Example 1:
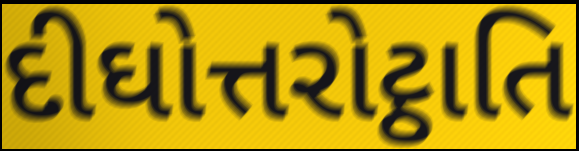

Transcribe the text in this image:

દીઘોત્તરોટ્ઠાતિ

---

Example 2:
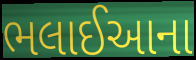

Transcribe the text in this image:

ભલાઈઆના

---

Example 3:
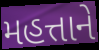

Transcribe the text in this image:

મહત્તાને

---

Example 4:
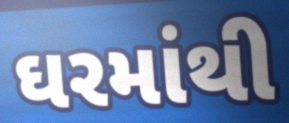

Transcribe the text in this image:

ઘરમાંથી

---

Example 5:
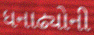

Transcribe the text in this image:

ધનાઢ્યોની